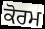
ਕੋਰਮ